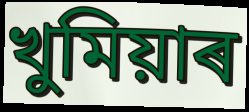
খুমিয়াৰ